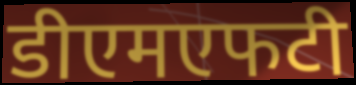
डीएमएफटी